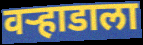
वऱ्हाडाला